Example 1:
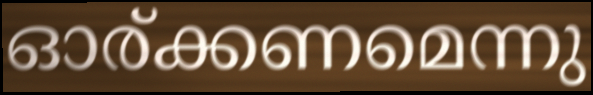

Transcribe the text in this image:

ഓര്ക്കണമെന്നു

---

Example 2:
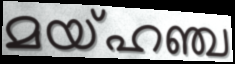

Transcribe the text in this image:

മയ്ഹഞ്ച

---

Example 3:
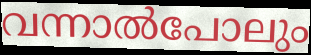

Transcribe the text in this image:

വന്നാൽപോലും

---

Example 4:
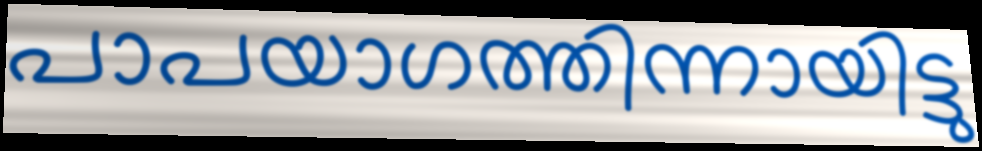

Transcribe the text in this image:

പാപയാഗത്തിന്നായിട്ടു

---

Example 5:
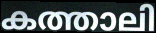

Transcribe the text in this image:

കത്താലി